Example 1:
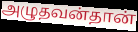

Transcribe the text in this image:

அழுதவன்தான்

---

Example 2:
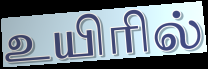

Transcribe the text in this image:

உயிரில்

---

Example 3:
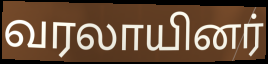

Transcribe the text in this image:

வரலாயினர்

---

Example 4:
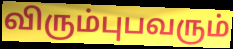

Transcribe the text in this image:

விரும்புபவரும்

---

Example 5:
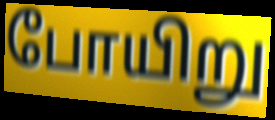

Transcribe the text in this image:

போயிறு